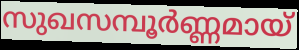
സുഖസമ്പൂർണ്ണമായ്